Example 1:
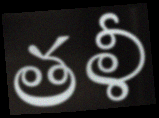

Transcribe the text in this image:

తళీ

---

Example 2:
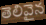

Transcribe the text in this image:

తెలివైన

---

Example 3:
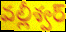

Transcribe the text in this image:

వల్లీశ్వర్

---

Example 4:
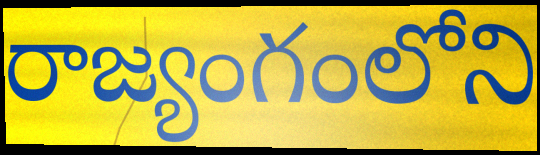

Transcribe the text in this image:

రాజ్యంగంలోని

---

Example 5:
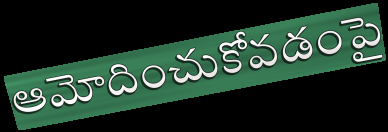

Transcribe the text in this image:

ఆమోదించుకోవడంపై